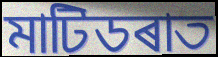
মাটিডৰাত